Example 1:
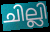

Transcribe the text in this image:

ചില്ലി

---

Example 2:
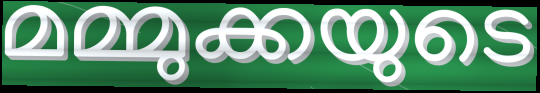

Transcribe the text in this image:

മമ്മുക്കയുടെ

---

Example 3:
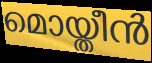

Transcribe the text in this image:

മൊയ്തീൻ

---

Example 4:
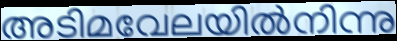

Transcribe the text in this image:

അടിമവേലയിൽനിന്നു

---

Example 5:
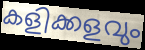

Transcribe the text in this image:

കളിക്കളവും